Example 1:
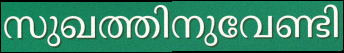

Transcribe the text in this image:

സുഖത്തിനുവേണ്ടി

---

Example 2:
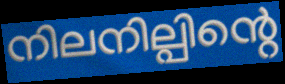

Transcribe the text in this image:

നിലനില്പിന്റെ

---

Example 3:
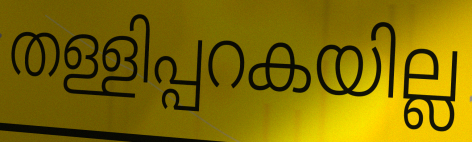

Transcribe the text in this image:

തള്ളിപ്പറകയില്ല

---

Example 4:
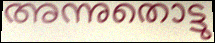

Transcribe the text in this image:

അന്നുതൊട്ടു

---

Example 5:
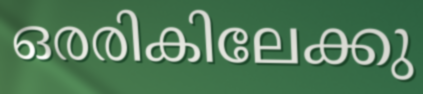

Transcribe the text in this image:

ഒരരികിലേക്കു